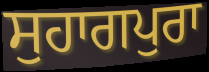
ਸੁਹਾਗਪੁਰਾ